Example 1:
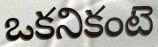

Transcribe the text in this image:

ఒకనికంటె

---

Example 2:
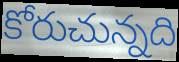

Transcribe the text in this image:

కోరుచున్నది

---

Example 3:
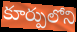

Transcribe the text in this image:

కూర్పులోని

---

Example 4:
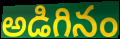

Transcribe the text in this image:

అడిగినం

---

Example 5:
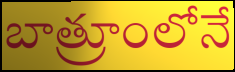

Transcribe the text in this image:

బాత్రూంలోనే